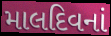
માલદિવનાં